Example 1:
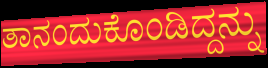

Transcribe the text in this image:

ತಾನಂದುಕೊಂಡಿದ್ದನ್ನು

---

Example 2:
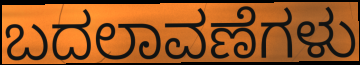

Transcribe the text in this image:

ಬದಲಾವಣೆಗಳು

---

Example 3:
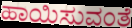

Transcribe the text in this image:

ಹಾಯಿಸುವಂತೆ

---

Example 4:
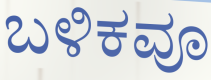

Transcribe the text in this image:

ಬಳಿಕವೂ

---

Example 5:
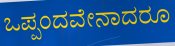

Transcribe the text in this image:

ಒಪ್ಪಂದವೇನಾದರೂ